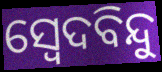
ସ୍ଵେଦବିନ୍ଦୁ